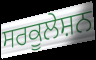
ਸਰਕੂਲੇਸ਼ਨ